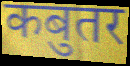
कबुतर